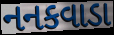
નનકવાડા